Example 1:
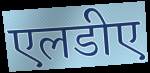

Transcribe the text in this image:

एलडीए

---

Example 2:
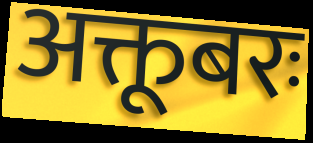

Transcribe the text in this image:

अक्तूबरः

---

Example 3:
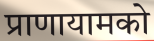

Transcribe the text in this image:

प्राणायामको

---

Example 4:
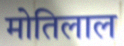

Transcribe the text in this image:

मोतिलाल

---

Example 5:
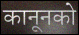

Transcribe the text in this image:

कानूनको